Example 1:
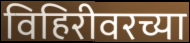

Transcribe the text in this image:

विहिरीवरच्या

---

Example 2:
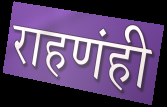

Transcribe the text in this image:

राहणंही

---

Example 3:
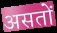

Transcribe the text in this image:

असतों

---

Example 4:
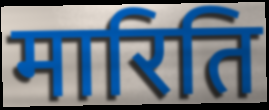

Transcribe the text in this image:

मारिति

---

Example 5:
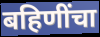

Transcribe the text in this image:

बहिणींचा